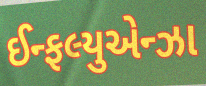
ઈન્ફલ્યુએન્ઝા